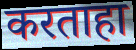
करताहा